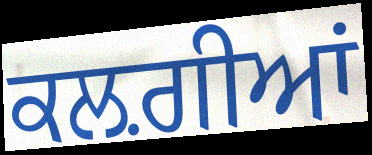
ਕਲ਼ਗੀਆਂ